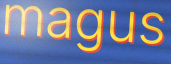
magus